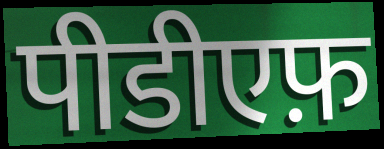
पीडीएफ़